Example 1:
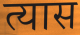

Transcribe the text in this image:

त्‍यास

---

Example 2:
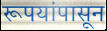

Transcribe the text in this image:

रूपयांपासून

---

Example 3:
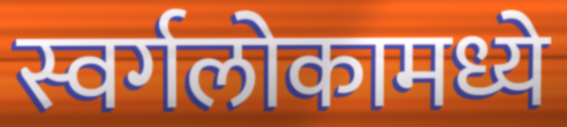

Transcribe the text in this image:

स्वर्गलोकामध्ये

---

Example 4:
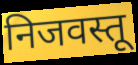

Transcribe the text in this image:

निजवस्तू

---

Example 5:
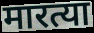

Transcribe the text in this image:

मारत्या